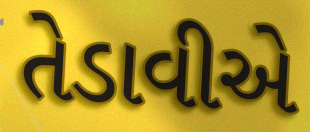
તેડાવીએ